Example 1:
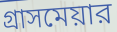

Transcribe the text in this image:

গ্রাসমেয়ার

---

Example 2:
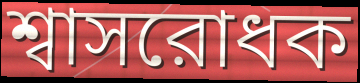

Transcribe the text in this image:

শ্বাসরোধক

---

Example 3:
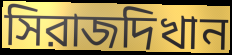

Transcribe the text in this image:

সিরাজদিখান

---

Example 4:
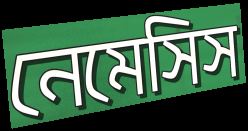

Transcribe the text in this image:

নেমেসিস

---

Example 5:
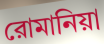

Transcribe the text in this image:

রোমানিয়া